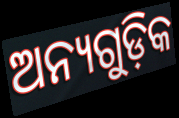
ଅନ୍ୟଗୁଡ଼ିକ